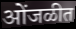
ओंजळीत